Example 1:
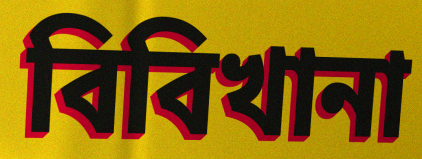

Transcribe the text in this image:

বিবিখানা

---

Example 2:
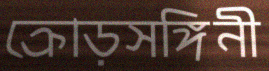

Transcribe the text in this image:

ক্রোড়সঙ্গিনী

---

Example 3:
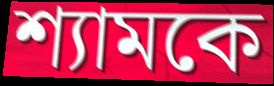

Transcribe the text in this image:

শ্যামকে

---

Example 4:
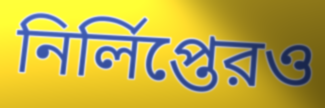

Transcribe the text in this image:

নির্লিপ্তেরও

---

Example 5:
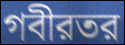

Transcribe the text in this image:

গবীরতর